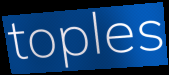
toples